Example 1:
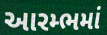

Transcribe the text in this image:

આરમ્ભમાં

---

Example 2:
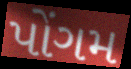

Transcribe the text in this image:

પોંગમ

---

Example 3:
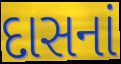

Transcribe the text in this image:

દાસનાં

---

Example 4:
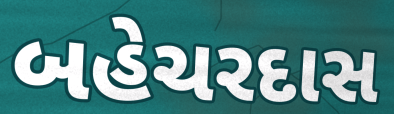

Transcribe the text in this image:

બહેચરદાસ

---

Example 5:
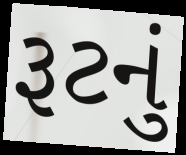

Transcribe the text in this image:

રૂટનું